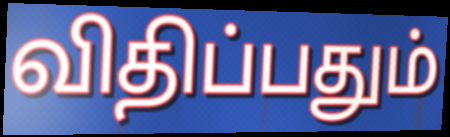
விதிப்பதும்